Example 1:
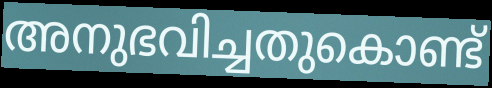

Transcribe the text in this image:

അനുഭവിച്ചതുകൊണ്ട്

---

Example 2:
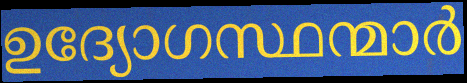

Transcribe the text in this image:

ഉദ്യോഗസ്ഥന്മാർ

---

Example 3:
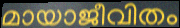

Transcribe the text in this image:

മായാജീവിതം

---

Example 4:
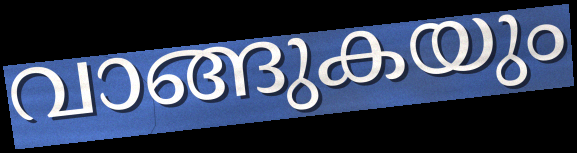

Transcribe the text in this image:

വാങ്ങുകയും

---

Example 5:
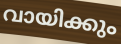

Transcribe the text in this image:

വായിക്കും